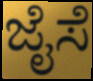
ಜೈಸೆ